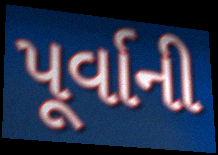
પૂર્વાની